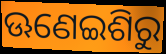
ଊଣେଇଶିରୁ